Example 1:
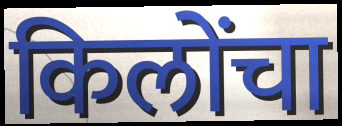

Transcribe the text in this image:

किलोंचा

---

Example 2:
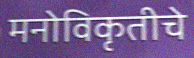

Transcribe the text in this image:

मनोविकृतीचे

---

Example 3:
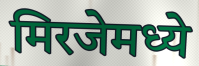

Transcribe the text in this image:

मिरजेमध्ये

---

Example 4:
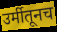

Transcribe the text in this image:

उर्मीतूनच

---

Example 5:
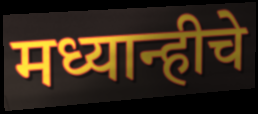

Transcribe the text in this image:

मध्यान्हीचे